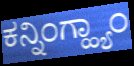
ಕನ್ನಿಂಗ್ಹ್ಯಾಂ